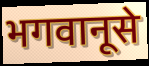
भगवानूसे